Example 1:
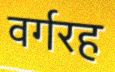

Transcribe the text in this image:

वर्गरह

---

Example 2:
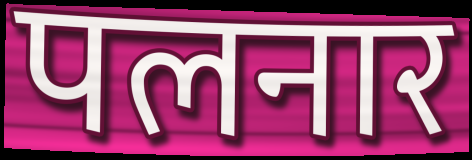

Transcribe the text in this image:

पलनार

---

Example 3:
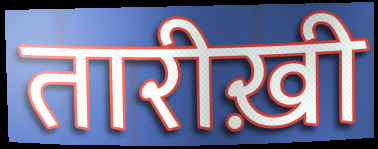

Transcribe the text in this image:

तारीख़ी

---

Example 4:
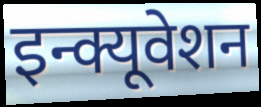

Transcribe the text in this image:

इन्क्यूवेशन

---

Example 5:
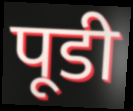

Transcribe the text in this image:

पूडी